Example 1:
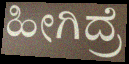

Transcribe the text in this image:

ಹೀಗಿದ್ರೆ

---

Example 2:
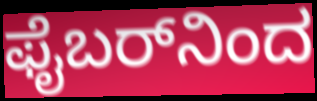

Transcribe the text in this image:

ಫೈಬರ್‌ನಿಂದ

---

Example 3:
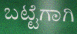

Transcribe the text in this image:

ಬಟ್ಟೆಗಾಗಿ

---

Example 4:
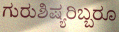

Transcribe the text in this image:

ಗುರುಶಿಷ್ಯರಿಬ್ಬರೂ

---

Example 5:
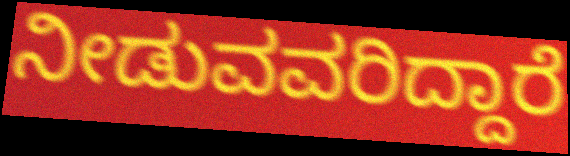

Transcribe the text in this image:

ನೀಡುವವರಿದ್ದಾರೆ